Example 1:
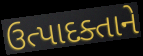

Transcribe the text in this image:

ઉત્પાદક્તાને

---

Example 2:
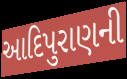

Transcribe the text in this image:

આદિપુરાણની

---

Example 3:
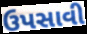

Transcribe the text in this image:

ઉપસાવી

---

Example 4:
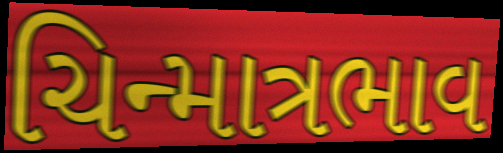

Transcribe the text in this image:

ચિન્માત્રભાવ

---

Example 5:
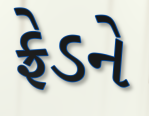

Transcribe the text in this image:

ફ્રેડને